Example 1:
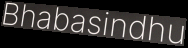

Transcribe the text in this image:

Bhabasindhu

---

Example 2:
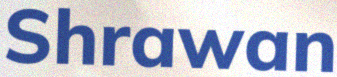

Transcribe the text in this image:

Shrawan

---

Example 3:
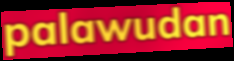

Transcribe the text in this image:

palawudan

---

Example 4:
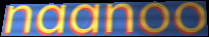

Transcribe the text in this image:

naanoo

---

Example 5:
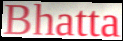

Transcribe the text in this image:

Bhatta